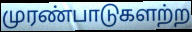
முரண்பாடுகளற்ற